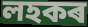
লহকৰ